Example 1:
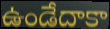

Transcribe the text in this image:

ఉండేదాకా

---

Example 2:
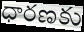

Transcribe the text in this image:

ధారణకు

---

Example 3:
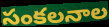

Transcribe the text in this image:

సంకలనాల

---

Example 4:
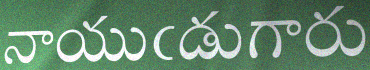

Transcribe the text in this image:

నాయుఁడుగారు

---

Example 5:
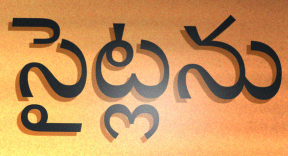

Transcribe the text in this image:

సైట్లను